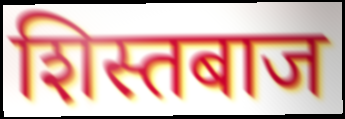
शिस्तबाज